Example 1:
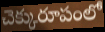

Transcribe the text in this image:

చెక్కురూపంలో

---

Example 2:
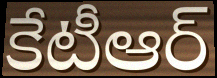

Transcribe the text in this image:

కేటీఆర్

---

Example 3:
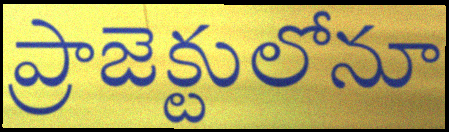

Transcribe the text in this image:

ప్రాజెక్టులోనూ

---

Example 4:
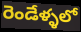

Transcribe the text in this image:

రెండేళ్ళలో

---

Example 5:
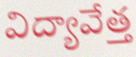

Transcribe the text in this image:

విద్యావేత్త